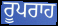
ਰੂਪਰਾਹ